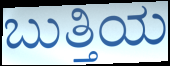
ಬುತ್ತಿಯ